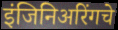
इंजिनिअरिंगचे